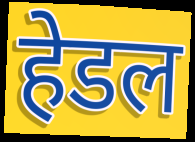
हेडल